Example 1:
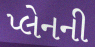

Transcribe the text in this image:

પ્લેનની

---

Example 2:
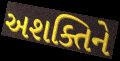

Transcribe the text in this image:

અશક્તિને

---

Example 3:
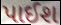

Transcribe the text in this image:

પાઈશ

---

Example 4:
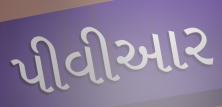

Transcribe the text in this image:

પીવીઆર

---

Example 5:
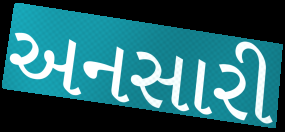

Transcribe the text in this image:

અનસારી